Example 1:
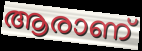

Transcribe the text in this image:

ആരാണ്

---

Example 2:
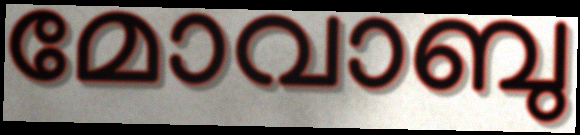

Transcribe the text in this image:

മോവാബു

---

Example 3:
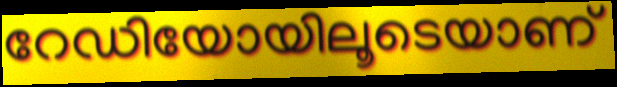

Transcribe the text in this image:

റേഡിയോയിലൂടെയാണ്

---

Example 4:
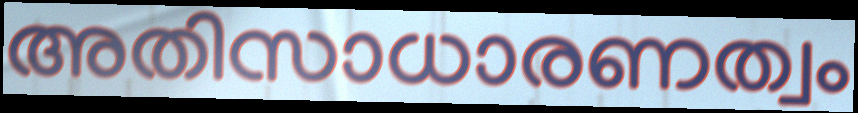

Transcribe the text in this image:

അതിസാധാരണത്വം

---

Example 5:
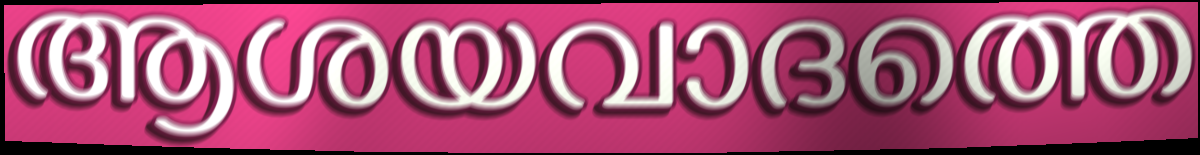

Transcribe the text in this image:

ആശയവാദത്തെ